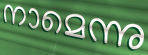
നാമെന്നു